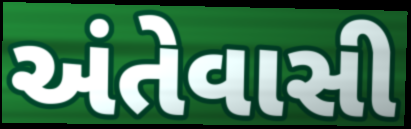
અંતેવાસી